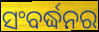
ସଂବର୍ଦ୍ଧନର